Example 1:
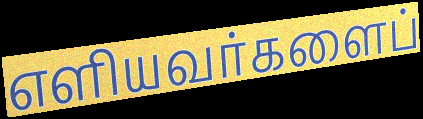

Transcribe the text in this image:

எளியவர்களைப்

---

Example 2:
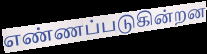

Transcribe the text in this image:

எண்ணப்படுகின்றன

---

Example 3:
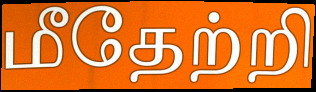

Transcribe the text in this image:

மீதேற்றி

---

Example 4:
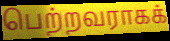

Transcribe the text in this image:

பெற்றவராகக்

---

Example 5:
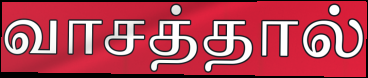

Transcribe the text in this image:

வாசத்தால்